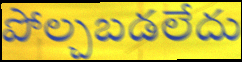
పోల్చబడలేదు